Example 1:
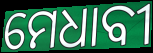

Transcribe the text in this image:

ମେଧାବୀ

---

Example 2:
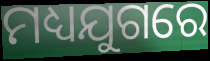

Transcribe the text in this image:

ମଧ୍ୟଯୁଗରେ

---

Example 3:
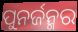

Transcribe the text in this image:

ପୁନର୍ଜନ୍ମର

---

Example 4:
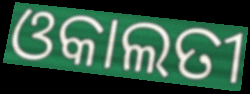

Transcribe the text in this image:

ଓକାଲତୀ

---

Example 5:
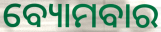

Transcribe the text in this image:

ବ୍ୟୋମବାର